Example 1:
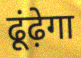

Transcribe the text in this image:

ढूंढ़ेगा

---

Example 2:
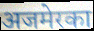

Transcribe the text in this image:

अजमेरका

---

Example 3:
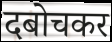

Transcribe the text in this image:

दबोचकर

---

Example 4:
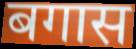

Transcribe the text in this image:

बगास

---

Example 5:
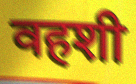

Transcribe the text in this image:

वहशी